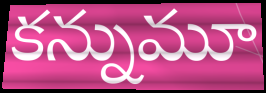
కన్నుమూ